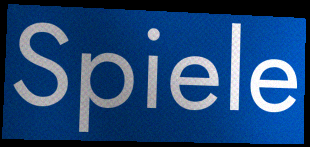
Spiele